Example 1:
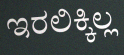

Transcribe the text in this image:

ಇರಲಿಕ್ಕಿಲ್ಲ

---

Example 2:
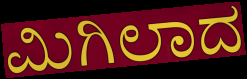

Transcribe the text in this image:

ಮಿಗಿಲಾದ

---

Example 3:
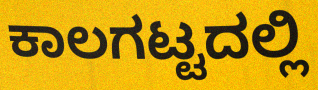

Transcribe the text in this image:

ಕಾಲಗಟ್ಟದಲ್ಲಿ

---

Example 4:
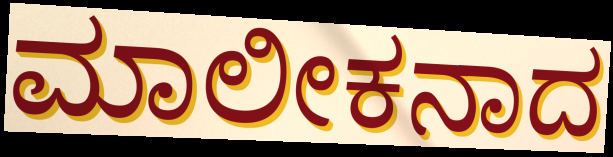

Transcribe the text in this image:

ಮಾಲೀಕನಾದ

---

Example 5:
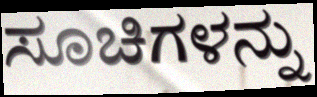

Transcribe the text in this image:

ಸೂಚಿಗಳನ್ನು